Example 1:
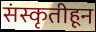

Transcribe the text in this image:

संस्कृतीहून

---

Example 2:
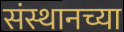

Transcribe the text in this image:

संस्थानच्या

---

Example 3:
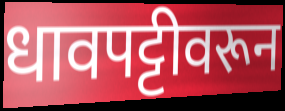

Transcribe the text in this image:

धावपट्टीवरून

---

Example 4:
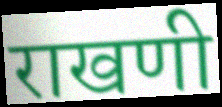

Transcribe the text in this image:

राखणी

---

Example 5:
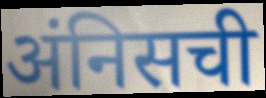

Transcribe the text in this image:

अंनिसची